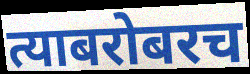
त्याबरोबरच